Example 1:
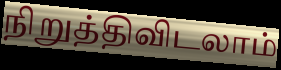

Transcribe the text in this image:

நிறுத்திவிடலாம்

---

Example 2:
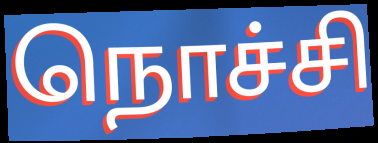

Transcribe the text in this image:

நொச்சி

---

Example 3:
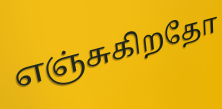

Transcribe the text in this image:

எஞ்சுகிறதோ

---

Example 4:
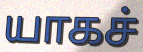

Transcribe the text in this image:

யாகச்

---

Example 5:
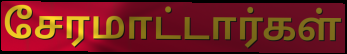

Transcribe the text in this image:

சேரமாட்டார்கள்